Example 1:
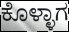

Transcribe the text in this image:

ಕೊಳ್ಳಾಗ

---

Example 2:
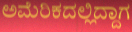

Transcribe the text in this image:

ಅಮೆರಿಕದಲ್ಲಿದ್ದಾಗ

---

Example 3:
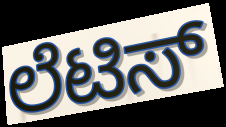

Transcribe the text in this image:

ಲೆಟಿಸ್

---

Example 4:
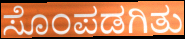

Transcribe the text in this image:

ಸೊಂಪಡಗಿತು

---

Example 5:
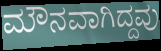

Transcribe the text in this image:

ಮೌನವಾಗಿದ್ದವು